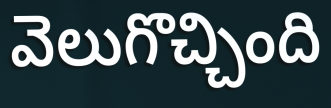
వెలుగొచ్చింది